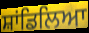
ਸ਼ਾਂਡਿਲਿਆ